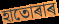
হাতোৰাৰ